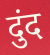
दुंद